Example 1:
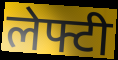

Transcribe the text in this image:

लेफ्टी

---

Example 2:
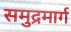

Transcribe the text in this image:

समुद्रमार्ग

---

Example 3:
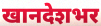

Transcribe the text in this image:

खानदेशभर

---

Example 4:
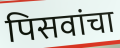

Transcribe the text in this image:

पिसवांचा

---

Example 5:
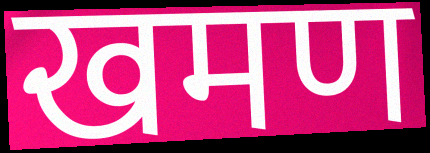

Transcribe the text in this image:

खमण